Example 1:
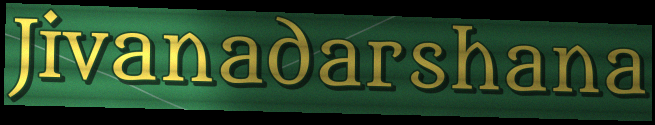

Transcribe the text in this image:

Jivanadarshana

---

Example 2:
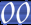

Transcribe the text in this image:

oo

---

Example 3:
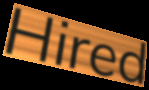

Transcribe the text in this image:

Hired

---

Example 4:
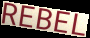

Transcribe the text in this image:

REBEL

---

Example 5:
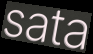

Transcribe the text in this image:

sata